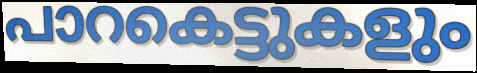
പാറകെട്ടുകളും